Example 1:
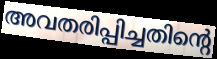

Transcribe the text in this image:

അവതരിപ്പിച്ചതിന്റെ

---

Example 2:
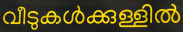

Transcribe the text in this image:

വീടുകൾക്കുള്ളിൽ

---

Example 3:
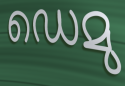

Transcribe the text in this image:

ഡെമു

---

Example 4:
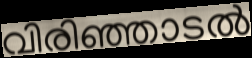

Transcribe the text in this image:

വിരിഞ്ഞാടൽ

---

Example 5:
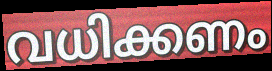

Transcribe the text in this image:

വധിക്കണം